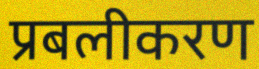
प्रबलीकरण